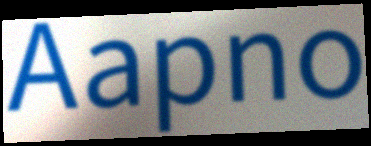
Aapno